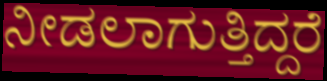
ನೀಡಲಾಗುತ್ತಿದ್ದರೆ